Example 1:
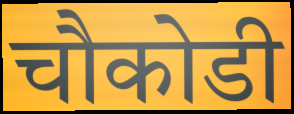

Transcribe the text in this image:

चौकोडी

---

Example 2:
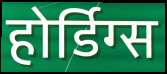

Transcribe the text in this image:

होर्डिग्स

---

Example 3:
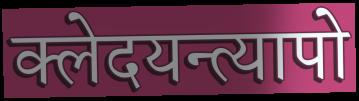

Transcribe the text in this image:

क्लेदयन्त्यापो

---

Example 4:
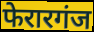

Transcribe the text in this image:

फेरारगंज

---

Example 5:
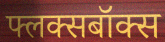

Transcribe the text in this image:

फ्लक्सबॉक्स